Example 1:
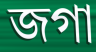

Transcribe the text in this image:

জগা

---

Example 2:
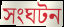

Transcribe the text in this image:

সংঘটন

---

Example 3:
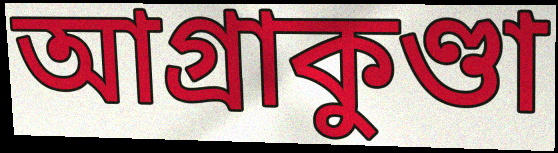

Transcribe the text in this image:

আগ্রাকুণ্ডা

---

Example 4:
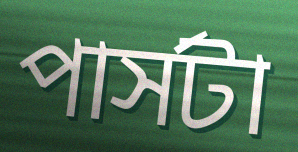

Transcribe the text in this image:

পার্সটা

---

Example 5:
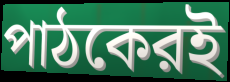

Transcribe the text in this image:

পাঠকেরই